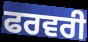
ਫਰਵਰੀ